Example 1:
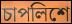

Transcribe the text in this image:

চাপলিশে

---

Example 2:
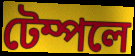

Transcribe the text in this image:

টেম্পলে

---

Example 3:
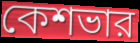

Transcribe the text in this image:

কেশভার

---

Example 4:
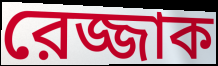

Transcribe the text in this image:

রেজ্জাক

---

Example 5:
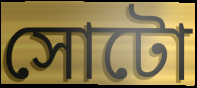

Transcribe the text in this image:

সোটো